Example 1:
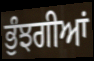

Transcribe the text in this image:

ਭੁੰਝਗੀਆਂ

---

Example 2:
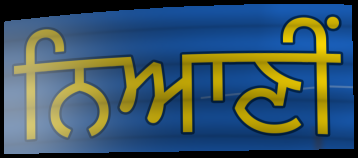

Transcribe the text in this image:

ਨਿਆਣੀਂ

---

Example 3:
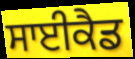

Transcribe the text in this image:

ਸਾਈਕੈਡ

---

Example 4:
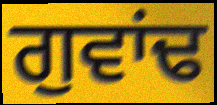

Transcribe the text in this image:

ਗੁਵਾਂਢ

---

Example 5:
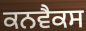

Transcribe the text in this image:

ਕਨਵੈਕਸ